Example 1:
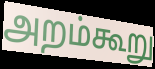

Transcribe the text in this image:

அறம்கூறு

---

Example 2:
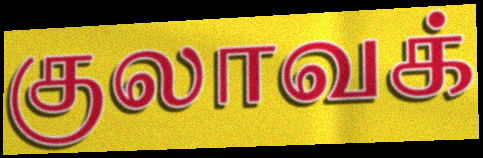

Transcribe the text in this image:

குலாவக்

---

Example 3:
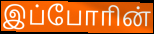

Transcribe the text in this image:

இப்போரின்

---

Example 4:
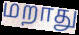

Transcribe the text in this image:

மறாது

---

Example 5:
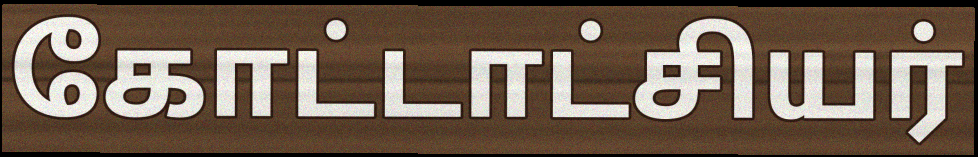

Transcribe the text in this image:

கோட்டாட்சியர்